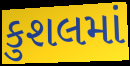
કુશલમાં